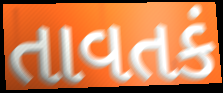
તાવતકં